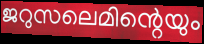
ജറുസലെമിന്റെയും